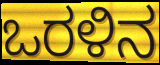
ಒರಳಿನ